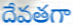
దేవతగా